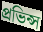
প্রভিন্স